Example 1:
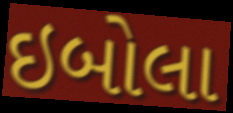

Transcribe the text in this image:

ઇબોલા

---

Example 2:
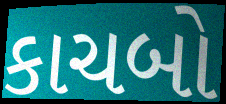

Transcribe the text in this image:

કાચબો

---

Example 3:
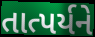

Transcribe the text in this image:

તાત્પર્યને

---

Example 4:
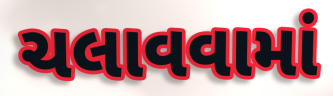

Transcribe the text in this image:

ચલાવવામાં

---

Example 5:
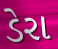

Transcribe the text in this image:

ડેરા